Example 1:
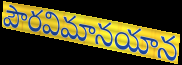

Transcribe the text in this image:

పౌరవిమానయాన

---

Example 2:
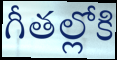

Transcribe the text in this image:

గీతల్లోకి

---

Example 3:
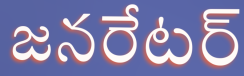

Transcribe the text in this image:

జనరేటర్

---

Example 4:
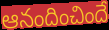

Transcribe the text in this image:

ఆనందించిందే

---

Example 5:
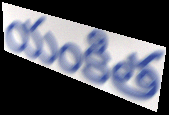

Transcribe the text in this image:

యంకిత